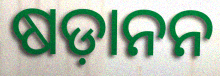
ଷଡ଼ାନନ